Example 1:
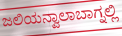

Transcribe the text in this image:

ಜಲಿಯನ್ವಾಲಾಬಾಗ್ನಲ್ಲಿ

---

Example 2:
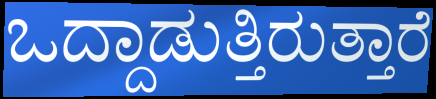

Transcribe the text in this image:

ಒದ್ದಾಡುತ್ತಿರುತ್ತಾರೆ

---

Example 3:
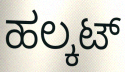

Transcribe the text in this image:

ಹಲ್ಕಟ್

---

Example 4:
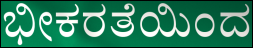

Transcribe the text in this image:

ಭೀಕರತೆಯಿಂದ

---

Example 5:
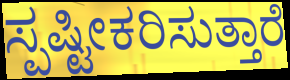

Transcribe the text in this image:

ಸ್ಪಷ್ಟೀಕರಿಸುತ್ತಾರೆ